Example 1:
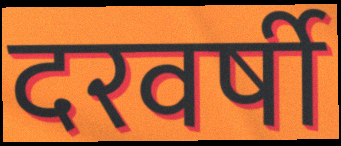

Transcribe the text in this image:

दरवर्षी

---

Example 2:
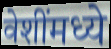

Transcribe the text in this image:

वेशींमध्ये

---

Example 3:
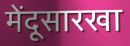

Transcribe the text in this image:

मेंदूसारखा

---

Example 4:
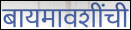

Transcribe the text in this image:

बायमावशींची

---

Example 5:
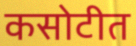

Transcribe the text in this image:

कसोटीत